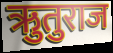
ऋुतुराज